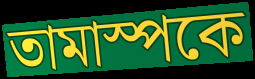
তামাস্পকে